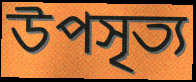
উপসৃত্য